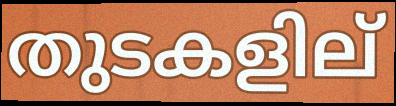
തുടകളില്